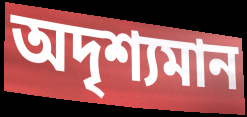
অদৃশ্যমান